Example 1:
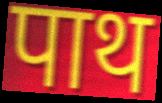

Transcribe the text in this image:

पाथ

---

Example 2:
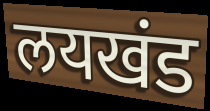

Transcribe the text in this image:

लयखंड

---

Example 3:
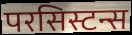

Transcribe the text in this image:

परसिस्टन्स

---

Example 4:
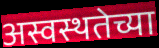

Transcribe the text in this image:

अस्वस्थतेच्या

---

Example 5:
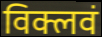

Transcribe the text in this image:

विक्लवं